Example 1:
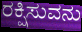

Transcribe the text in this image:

ರಕ್ಷಿಸುವನು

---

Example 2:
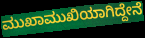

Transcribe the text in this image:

ಮುಖಾಮುಖಿಯಾಗಿದ್ದೇನೆ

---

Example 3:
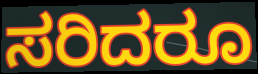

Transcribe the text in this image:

ಸರಿದರೂ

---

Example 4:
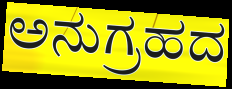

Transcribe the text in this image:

ಅನುಗ್ರಹದ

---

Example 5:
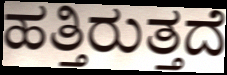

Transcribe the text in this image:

ಹತ್ತಿರುತ್ತದೆ